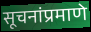
सूचनांप्रमाणे